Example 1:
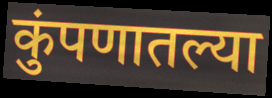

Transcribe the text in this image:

कुंपणातल्या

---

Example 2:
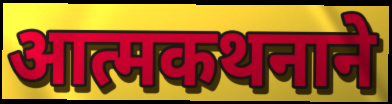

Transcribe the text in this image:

आत्मकथनाने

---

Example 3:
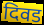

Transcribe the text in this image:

दिवड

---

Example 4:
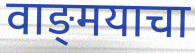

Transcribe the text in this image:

वाङ्मयाचा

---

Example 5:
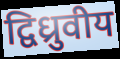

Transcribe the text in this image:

द्विध्रुवीय